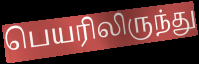
பெயரிலிருந்து